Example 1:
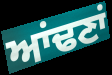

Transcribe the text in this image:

ਆਂਢਣਾਂ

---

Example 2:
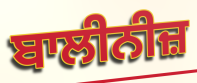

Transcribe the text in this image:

ਬਾਲੀਨੀਜ਼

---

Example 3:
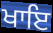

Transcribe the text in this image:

ਖਾਇ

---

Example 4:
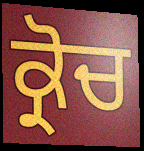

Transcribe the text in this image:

ਕ੍ਰੋਚ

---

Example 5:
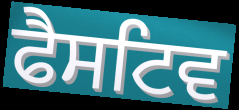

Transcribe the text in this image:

ਫੈਸਟਿਵ